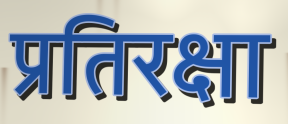
प्रतिरक्षा